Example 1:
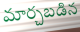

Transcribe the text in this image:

మార్చబడిన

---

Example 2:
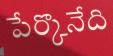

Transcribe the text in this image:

పేర్కొనేది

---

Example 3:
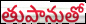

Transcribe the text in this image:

తుపానుతో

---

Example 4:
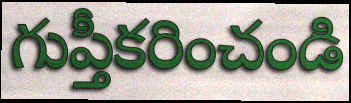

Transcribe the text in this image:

గుప్తీకరించండి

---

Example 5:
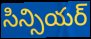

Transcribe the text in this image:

సిన్సియర్